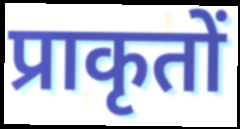
प्राकृतों